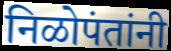
निळोपंतांनी